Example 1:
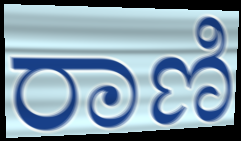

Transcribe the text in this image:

ರಾಣಿ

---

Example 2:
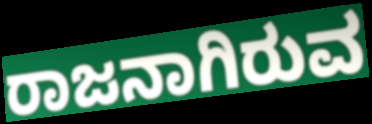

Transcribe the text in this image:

ರಾಜನಾಗಿರುವ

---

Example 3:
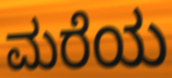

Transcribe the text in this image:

ಮರೆಯ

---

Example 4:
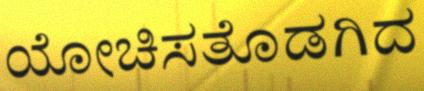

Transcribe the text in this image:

ಯೋಚಿಸತೊಡಗಿದ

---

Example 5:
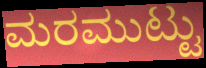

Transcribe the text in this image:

ಮರಮುಟ್ಟು